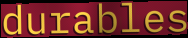
durables